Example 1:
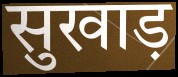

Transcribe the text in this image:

सुखाड़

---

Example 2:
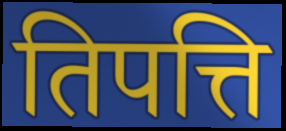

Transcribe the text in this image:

तिपत्ति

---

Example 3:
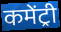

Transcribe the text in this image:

कमेंट्री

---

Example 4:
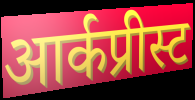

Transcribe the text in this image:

आर्कप्रीस्ट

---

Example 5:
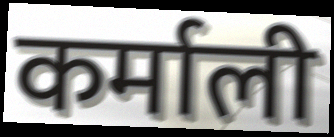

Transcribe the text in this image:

कर्माली